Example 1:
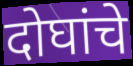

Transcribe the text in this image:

दोघांचे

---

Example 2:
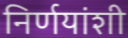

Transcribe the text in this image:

निर्णयांशी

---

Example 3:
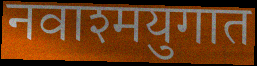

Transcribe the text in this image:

नवाश्मयुगात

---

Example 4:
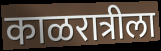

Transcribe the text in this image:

काळरात्रीला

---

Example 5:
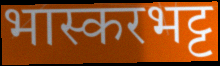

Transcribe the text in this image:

भास्करभट्ट